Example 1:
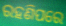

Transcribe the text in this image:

ରହଣିପରେ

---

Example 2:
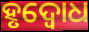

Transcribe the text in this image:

ହୃଦ୍ବୋଧ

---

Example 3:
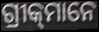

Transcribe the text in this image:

ଗ୍ରୀକ୍‌ମାନେ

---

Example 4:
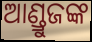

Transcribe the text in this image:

ଆଣ୍ଡ୍ରୁଜଙ୍କ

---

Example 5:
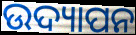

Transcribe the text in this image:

ଉଦ୍ୟାପନ